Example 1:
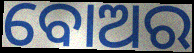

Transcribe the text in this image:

ବୋଅର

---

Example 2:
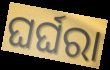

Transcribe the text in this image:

ଘର୍ଘରା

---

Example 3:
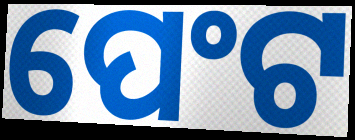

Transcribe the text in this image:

ପେଂଟ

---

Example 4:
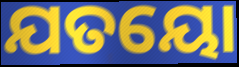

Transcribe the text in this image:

ଯତୟୋ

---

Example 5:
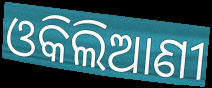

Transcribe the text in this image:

ଓକିଲିଆଣୀ